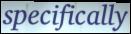
specifically